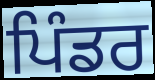
ਪਿੰਡਰ